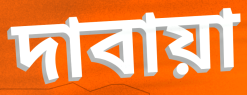
দাবায়া